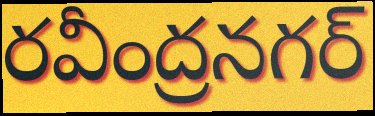
రవీంద్రనగర్